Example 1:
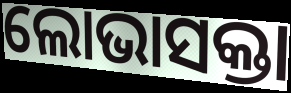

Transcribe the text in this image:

ଲୋଭାସକ୍ତା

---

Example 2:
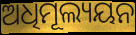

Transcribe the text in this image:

ଅଧିମୂଲ୍ୟୟନ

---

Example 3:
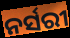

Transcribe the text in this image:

ନର୍ସରୀ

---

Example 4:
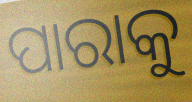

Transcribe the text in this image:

ପାରାକୁ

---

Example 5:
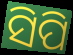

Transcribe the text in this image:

ସିପି